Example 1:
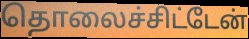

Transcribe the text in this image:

தொலைச்சிட்டேன்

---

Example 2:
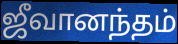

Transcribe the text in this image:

ஜீவானந்தம்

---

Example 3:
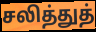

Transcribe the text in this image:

சலித்துத்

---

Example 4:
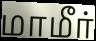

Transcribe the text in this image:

மாமீர்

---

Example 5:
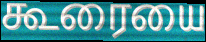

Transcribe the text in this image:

கூரையை